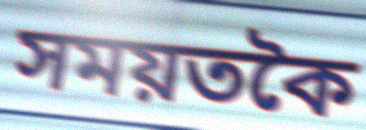
সময়তকৈ